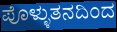
ಪೊಳ್ಳುತನದಿಂದ